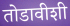
तोडावीशी